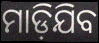
ମାଡ଼ିଯିବ